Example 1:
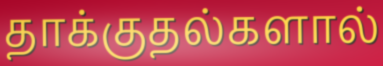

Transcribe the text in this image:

தாக்குதல்களால்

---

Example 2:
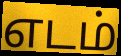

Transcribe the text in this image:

எடம்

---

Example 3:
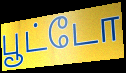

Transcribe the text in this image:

பூட்டோ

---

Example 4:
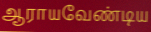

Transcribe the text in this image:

ஆராயவேண்டிய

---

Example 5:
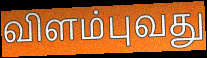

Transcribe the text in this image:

விளம்புவது